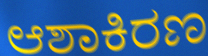
ಆಶಾಕಿರಣ